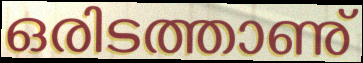
ഒരിടത്താണു്